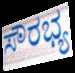
ಸೌರಭ್ಯ